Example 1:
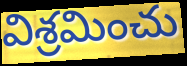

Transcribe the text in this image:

విశ్రమించు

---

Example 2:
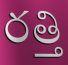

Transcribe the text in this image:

రత్తి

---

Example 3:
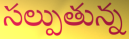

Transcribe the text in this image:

సల్పుతున్న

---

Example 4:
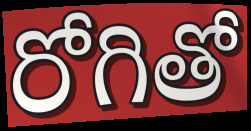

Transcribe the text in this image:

రోగితో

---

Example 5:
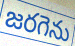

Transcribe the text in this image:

జరగెను